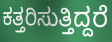
ಕತ್ತರಿಸುತ್ತಿದ್ದರೆ